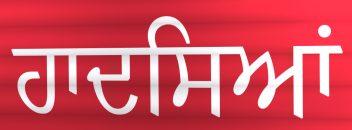
ਹਾਦਸਿਆਂ